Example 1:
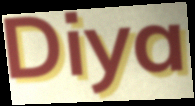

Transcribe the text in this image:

Diya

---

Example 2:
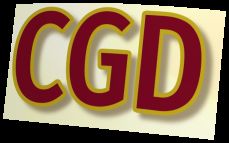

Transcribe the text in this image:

CGD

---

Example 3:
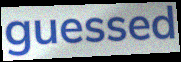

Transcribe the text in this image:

guessed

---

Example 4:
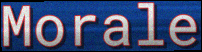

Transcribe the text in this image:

Morale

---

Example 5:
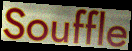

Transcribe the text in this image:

Souffle